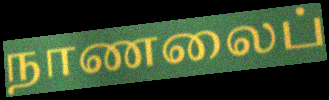
நாணலைப்